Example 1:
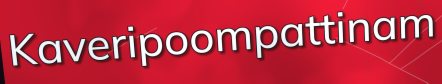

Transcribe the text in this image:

Kaveripoompattinam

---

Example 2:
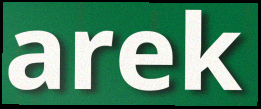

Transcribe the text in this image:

arek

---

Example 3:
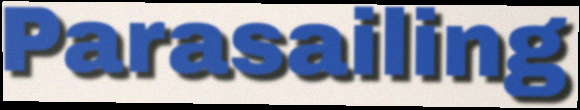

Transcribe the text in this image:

Parasailing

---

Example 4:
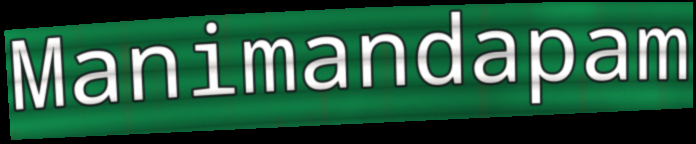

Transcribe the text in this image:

Manimandapam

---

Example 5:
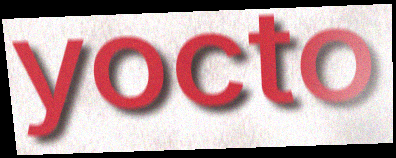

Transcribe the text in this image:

yocto